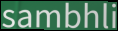
sambhli